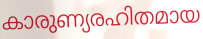
കാരുണ്യരഹിതമായ